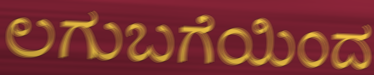
ಲಗುಬಗೆಯಿಂದ